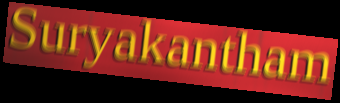
Suryakantham